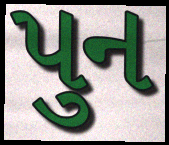
પુન